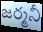
జర్మనీ